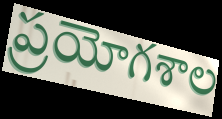
ప్రయోగశాల